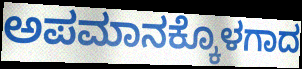
ಅಪಮಾನಕ್ಕೊಳಗಾದ